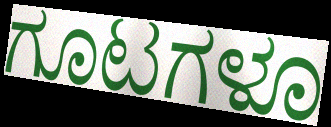
ಗೂಟಗಳೂ